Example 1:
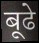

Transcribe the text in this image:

बूढे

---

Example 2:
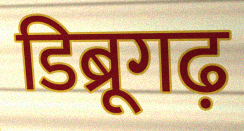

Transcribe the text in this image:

डिब्रूगढ़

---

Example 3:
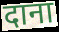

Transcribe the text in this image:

दाना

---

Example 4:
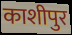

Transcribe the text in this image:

काशीपुर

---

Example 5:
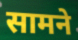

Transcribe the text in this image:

सामने